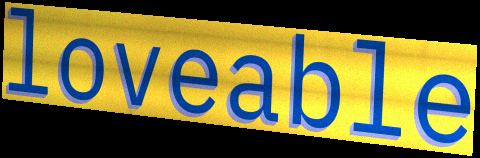
loveable